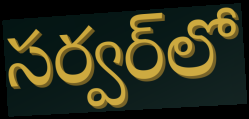
సర్వర్‌లో